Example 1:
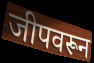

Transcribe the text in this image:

जीपवरून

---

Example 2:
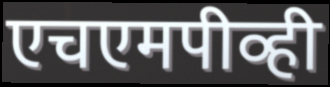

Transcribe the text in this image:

एचएमपीव्ही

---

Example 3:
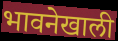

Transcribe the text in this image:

भावनेखाली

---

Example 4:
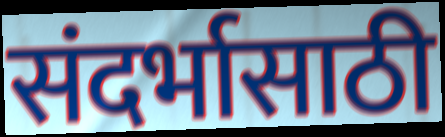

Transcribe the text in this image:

संदर्भासाठी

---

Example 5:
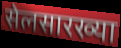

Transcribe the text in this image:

सेलसारख्या